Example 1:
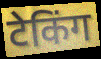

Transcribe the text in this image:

टेकिंग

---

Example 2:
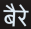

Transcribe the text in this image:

बैरे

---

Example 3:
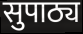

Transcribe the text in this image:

सुपाठ्य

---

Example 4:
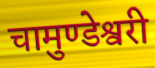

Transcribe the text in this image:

चामुण्डेश्वरी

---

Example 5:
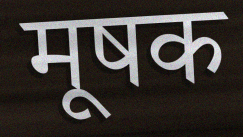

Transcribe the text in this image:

मूषक